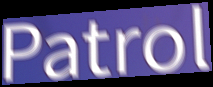
Patrol